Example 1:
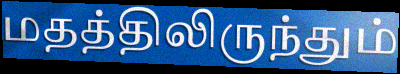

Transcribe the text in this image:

மதத்திலிருந்தும்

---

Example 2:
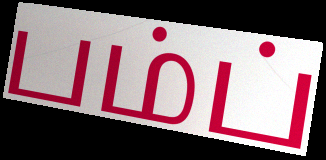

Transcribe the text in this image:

பம்ப்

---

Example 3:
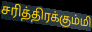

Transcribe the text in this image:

சரித்திரக்கும்மி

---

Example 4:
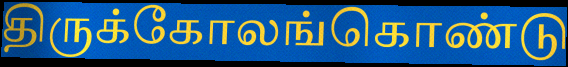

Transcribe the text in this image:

திருக்கோலங்கொண்டு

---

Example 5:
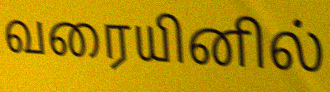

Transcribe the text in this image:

வரையினில்